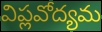
విప్లవోద్యమ